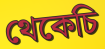
থেকেচি